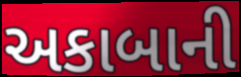
અકાબાની